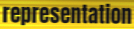
representation